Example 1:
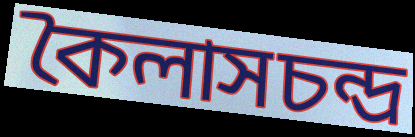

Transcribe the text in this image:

কৈলাসচন্দ্র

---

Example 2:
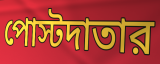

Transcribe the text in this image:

পোস্টদাতার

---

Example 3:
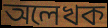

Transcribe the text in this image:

অলেখক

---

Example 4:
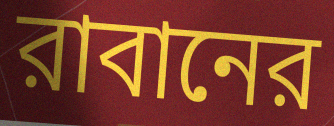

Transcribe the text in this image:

রাবানের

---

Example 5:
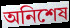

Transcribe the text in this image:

অনিশেষ